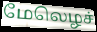
மேலெழச்